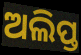
ଅଲିପ୍ତ